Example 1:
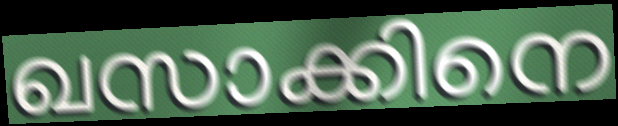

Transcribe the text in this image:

ഖസാക്കിനെ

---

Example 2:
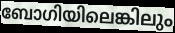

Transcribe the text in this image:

ബോഗിയിലെങ്കിലും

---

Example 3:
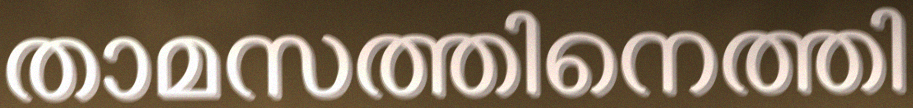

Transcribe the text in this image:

താമസത്തിനെത്തി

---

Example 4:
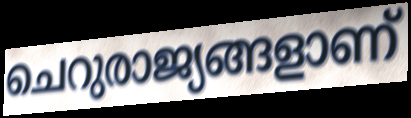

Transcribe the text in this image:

ചെറുരാജ്യങ്ങളാണ്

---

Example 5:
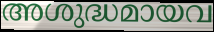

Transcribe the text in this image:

അശുദ്ധമായവ